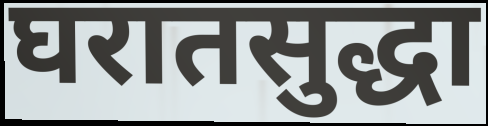
घरातसुद्धा